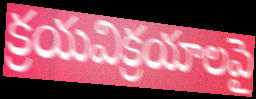
క్రయవిక్రయాలపై